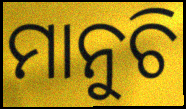
ମାନୁଚି